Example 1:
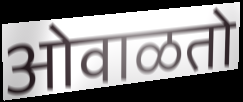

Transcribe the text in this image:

ओवाळतो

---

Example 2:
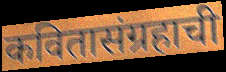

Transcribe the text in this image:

कवितासंग्रहाची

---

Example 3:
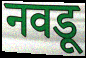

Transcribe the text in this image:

नवडू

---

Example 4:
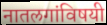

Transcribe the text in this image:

नातलगांविषयी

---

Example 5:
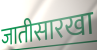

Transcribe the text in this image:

जातीसारखा